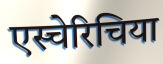
एस्चेरिचिया